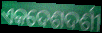
ଏକଦେଶଦର୍ଶୀ